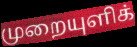
முறையுளிக்